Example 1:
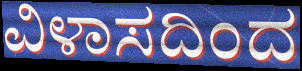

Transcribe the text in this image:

ವಿಳಾಸದಿಂದ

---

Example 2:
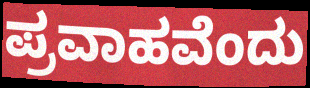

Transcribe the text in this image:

ಪ್ರವಾಹವೆಂದು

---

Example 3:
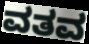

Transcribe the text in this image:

ವತವ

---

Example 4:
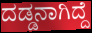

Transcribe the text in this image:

ದಡ್ಡನಾಗಿದ್ದೆ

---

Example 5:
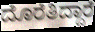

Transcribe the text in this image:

ದೊರೆತಿದ್ದಾರೆ